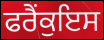
ਫਰੈਂਕੁਇਸ